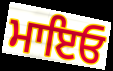
ਮਾਇਓ